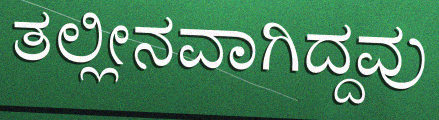
ತಲ್ಲೀನವಾಗಿದ್ದವು